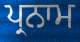
ਪ੍ਰਨਾਮ